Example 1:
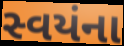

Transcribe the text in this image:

સ્વયંના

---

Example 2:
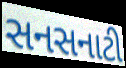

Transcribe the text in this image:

સનસનાટી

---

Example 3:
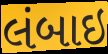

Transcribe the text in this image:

લંબાઇ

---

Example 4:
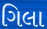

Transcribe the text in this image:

ગિલા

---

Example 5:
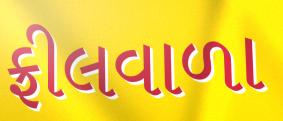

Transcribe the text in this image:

ફ્રીલવાળા